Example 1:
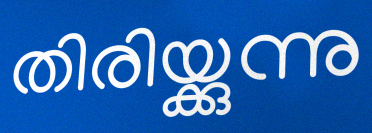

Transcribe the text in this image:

തിരിയ്ക്കുന്നു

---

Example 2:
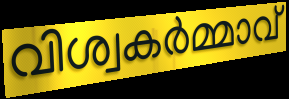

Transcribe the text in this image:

വിശ്വകർമ്മാവ്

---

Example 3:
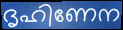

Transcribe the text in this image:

ദൃഹിണേന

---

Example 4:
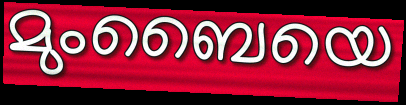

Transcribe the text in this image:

മുംബൈയെ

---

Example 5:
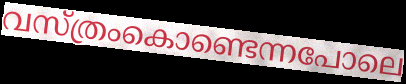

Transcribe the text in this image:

വസ്ത്രംകൊണ്ടെന്നപോലെ